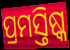
ପ୍ରମସ୍ତିଷ୍କ